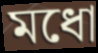
মধো